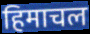
हिमाचल